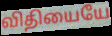
விதியையே